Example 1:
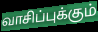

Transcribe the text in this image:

வாசிப்புக்கும்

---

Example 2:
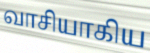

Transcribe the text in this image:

வாசியாகிய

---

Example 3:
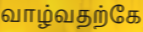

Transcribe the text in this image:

வாழ்வதற்கே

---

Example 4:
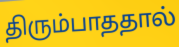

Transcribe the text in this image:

திரும்பாததால்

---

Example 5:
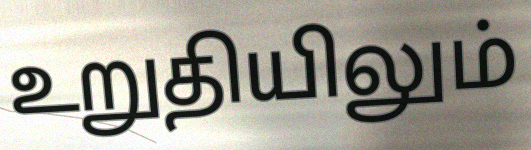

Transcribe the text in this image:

உறுதியிலும்